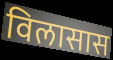
विलासास